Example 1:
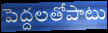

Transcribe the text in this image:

పెద్దలతోపాటు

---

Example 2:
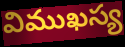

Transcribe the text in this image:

విముఖస్య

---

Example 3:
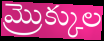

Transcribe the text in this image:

మ్రొక్కుల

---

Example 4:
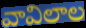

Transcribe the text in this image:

వావిలాల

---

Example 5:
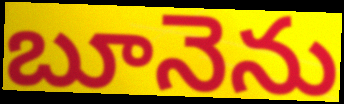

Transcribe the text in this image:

బూనెను